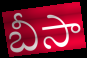
బీసా